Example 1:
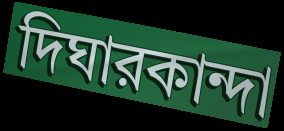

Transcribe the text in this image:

দিঘারকান্দা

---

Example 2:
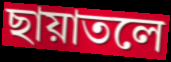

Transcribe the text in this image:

ছায়াতলে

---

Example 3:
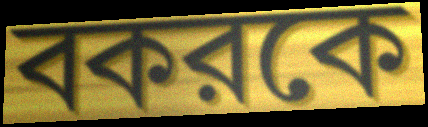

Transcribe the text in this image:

বকরকে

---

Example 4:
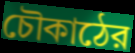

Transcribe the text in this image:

চৌকাঠের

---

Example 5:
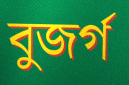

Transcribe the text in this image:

বুজর্গ